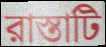
রাস্তাটি